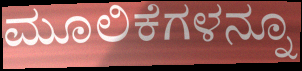
ಮೂಲಿಕೆಗಳನ್ನೂ